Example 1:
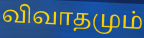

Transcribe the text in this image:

விவாதமும்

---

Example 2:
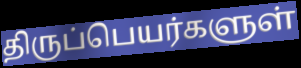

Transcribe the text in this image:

திருப்பெயர்களுள்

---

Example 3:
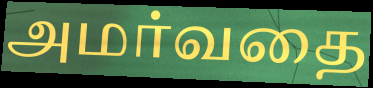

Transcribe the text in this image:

அமர்வதை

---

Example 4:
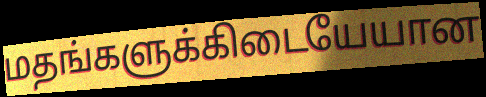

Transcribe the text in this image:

மதங்களுக்கிடையேயான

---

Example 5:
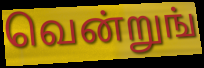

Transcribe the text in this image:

வென்றுங்